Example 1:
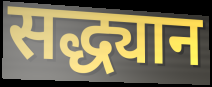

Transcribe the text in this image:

सद्ध्यान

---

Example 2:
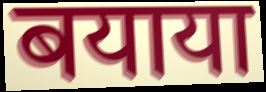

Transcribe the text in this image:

बयाया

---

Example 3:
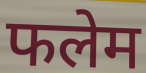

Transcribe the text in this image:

फलेम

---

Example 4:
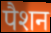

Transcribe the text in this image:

पैशन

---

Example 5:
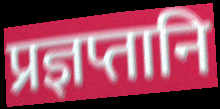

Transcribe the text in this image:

प्रज्ञप्तानि